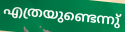
എത്രയുണ്ടെന്നു്